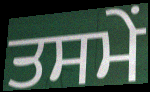
ਤਸਮੇਂ